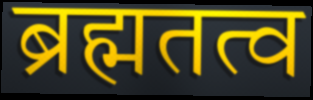
ब्रह्मतत्व